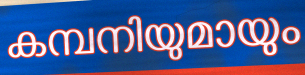
കമ്പനിയുമായും